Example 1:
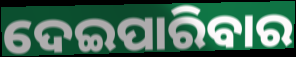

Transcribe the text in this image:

ଦେଇପାରିବାର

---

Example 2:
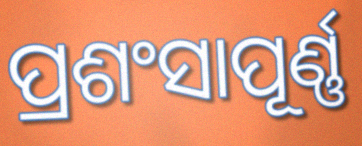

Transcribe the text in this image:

ପ୍ରଶଂସାପୂର୍ଣ୍ଣ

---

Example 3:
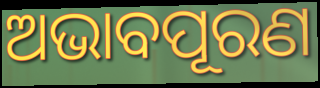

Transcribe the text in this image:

ଅଭାବପୂରଣ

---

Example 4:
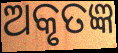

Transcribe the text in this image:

ଅକୃତଜ୍ଞ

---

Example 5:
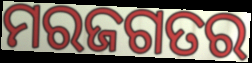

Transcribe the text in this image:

ମରଜଗତର